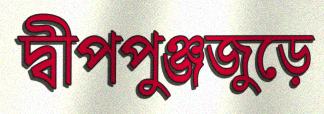
দ্বীপপুঞ্জজুড়ে